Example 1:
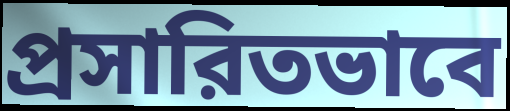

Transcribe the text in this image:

প্রসারিতভাবে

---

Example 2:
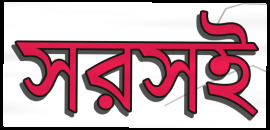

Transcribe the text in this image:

সরসই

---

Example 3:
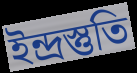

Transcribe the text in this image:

ইন্দ্রস্তুতি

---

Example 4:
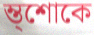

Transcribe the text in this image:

ম্ত্শোকে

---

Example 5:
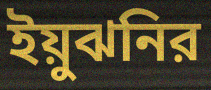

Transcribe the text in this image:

ইয়ুঝনির